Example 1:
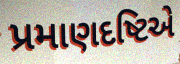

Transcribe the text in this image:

પ્રમાણદષ્ટિએ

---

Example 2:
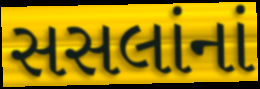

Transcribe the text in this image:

સસલાંનાં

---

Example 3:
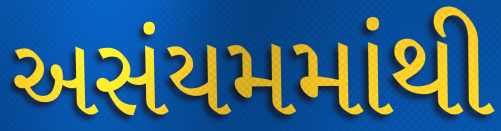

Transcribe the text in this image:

અસંયમમાંથી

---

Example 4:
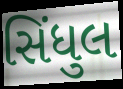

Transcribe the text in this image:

સિંધુલ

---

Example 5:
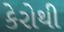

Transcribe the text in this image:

કેરોથી